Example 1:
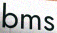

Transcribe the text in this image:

bms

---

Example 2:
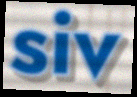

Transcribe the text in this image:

siv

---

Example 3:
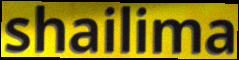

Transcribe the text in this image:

shailima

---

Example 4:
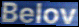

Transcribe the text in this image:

Belov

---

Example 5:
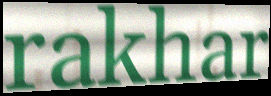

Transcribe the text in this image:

rakhar